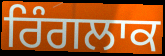
ਰਿੰਗਲਾਕ